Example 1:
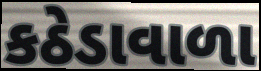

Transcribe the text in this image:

કઠેડાવાળા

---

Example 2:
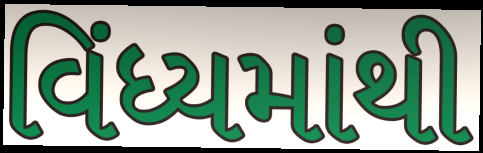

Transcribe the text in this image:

વિંધ્યમાંથી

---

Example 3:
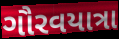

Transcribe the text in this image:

ગૌરવયાત્રા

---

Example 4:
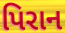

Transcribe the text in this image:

પિરાન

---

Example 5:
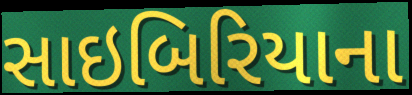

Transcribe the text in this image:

સાઇબિરિયાના